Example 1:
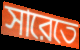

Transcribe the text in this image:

সারেতে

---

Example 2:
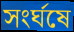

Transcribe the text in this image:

সংর্ঘষে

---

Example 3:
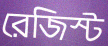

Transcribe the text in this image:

রেজিস্ট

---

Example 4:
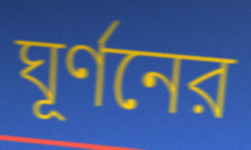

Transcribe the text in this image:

ঘূর্ণনের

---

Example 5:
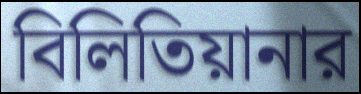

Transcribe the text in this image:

বিলিতিয়ানার